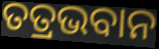
ତତ୍ରଭବାନ